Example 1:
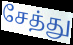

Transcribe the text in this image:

சேத்து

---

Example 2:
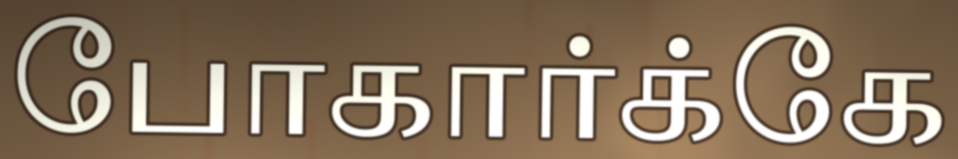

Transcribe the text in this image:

போகார்க்கே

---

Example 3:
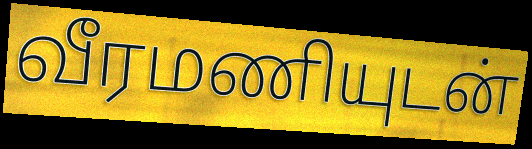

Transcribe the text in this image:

வீரமணியுடன்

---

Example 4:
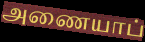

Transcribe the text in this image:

அணையாப்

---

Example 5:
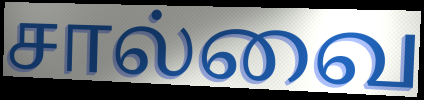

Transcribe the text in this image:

சால்வை